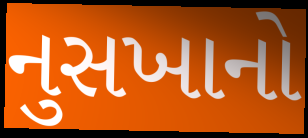
નુસખાનો